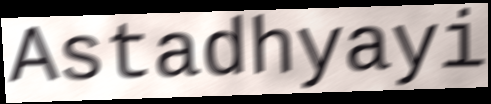
Astadhyayi